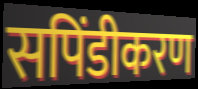
सपिंडीकरण